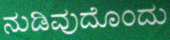
ನುಡಿವುದೊಂದು